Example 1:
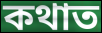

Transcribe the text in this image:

কথাত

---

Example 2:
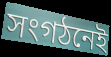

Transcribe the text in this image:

সংগঠনেই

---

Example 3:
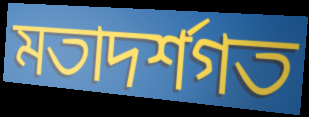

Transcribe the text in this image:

মতাদৰ্শগত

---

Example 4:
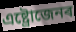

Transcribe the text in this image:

এষ্ট্ৰোজেনৰ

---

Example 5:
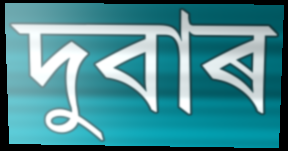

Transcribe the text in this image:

দুবাৰ